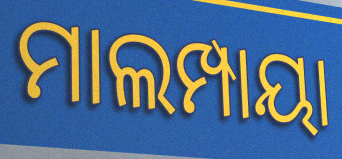
ମାଲମ୍ପାୟା